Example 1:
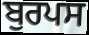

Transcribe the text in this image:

ਬੁਰਪਸ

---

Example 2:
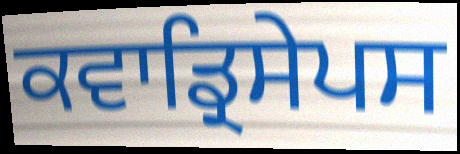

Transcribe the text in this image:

ਕਵਾਡ੍ਰਿਸੇਪਸ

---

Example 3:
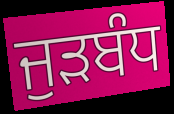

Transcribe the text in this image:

ਜੁੜਬੰਧ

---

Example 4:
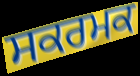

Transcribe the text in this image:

ਸਕਰਮਕ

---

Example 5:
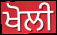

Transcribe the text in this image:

ਖੋਲੀ